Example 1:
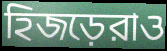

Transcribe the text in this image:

হিজড়েরাও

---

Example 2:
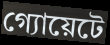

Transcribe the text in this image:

গ্যোয়েটে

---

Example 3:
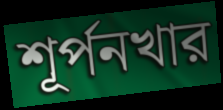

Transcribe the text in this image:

শূর্পনখার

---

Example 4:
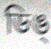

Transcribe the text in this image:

ডিঙ্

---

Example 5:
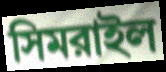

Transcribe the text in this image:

সিমরাইল